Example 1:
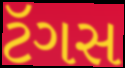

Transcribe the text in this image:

ટૅગસ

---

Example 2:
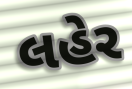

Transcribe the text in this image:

લહેર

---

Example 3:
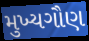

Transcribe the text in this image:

મુખ્યગૌણ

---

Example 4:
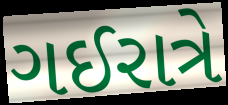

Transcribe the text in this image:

ગઈરાત્રે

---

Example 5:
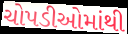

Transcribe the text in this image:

ચોપડીઓમાંથી